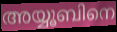
അയ്യൂബിനെ